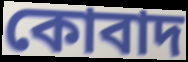
কোবাদ